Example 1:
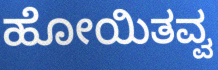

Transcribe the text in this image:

ಹೋಯಿತವ್ವ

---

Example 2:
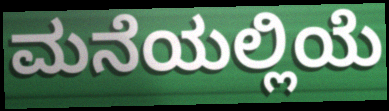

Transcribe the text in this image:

ಮನೆಯಲ್ಲಿಯೆ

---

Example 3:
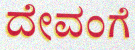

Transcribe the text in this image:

ದೇವಂಗೆ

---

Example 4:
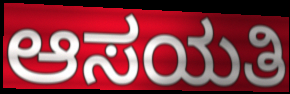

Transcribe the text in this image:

ಆಸಯತಿ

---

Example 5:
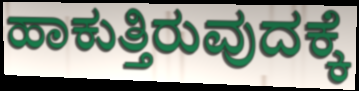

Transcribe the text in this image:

ಹಾಕುತ್ತಿರುವುದಕ್ಕೆ